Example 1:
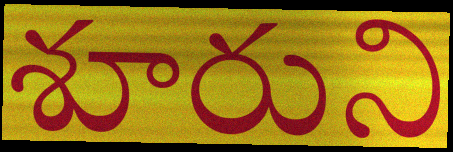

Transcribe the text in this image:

శూరుని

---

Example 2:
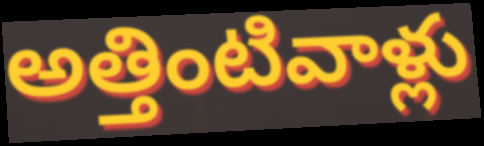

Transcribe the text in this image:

అత్తింటివాళ్లు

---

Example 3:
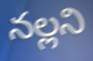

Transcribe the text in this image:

నల్లని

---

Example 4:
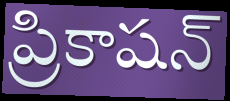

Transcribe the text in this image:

ప్రికాషన్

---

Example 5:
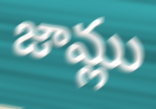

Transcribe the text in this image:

జామ్లు